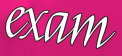
exam